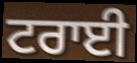
ਟਰਾਈ